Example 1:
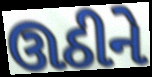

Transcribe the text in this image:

ઊઠીને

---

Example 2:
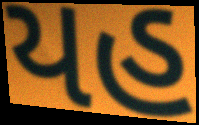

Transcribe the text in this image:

યહ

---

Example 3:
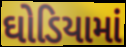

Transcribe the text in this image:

ઘોડિયામાં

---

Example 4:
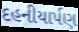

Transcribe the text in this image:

દહનીયાર્પણ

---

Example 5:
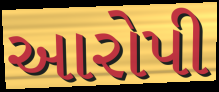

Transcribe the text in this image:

આરોપી